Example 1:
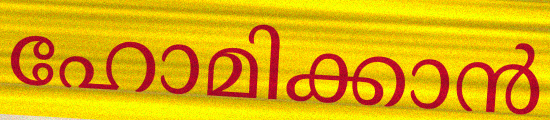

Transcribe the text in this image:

ഹോമിക്കാൻ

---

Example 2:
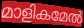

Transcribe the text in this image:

മാളികമേൽ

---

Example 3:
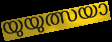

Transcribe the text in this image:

യുയുത്സയാ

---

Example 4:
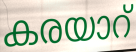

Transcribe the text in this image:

കരയാറ്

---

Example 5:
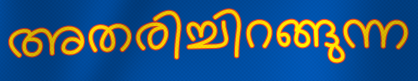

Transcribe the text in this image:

അതരിച്ചിറങ്ങുന്ന